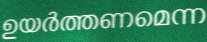
ഉയർത്തണമെന്ന